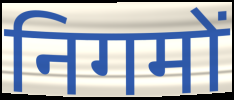
निगमों